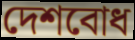
দেশবোধ